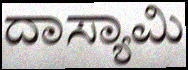
ದಾಸ್ಯಾಮಿ